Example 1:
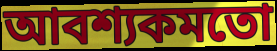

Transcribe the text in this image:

আবশ্যকমতো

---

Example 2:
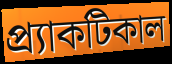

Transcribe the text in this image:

প্র্যাকটিকাল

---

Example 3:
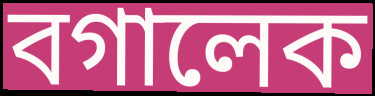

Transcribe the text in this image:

বগালেক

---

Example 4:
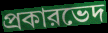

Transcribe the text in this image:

প্রকারভেদ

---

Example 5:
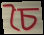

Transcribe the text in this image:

চৈ